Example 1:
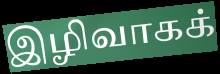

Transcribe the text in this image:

இழிவாகக்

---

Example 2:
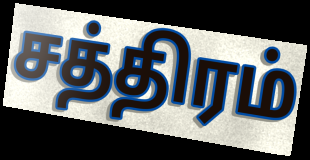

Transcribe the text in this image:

சத்திரம்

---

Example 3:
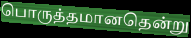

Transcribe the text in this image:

பொருத்தமானதென்று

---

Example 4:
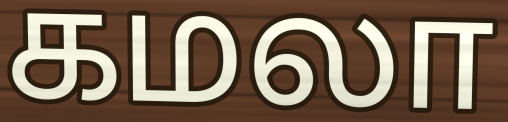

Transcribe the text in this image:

கமலா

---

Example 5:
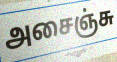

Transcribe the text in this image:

அசைஞ்சு